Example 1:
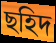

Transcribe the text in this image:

ছহিদ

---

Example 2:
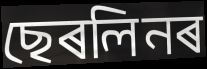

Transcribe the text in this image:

ছেৰলিনৰ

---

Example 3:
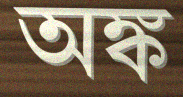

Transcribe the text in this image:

অঙ্ক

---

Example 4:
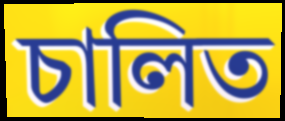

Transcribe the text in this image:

চালিত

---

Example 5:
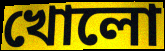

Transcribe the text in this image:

খোলো